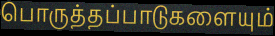
பொருத்தப்பாடுகளையும்